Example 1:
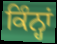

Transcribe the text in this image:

ਕਿੰਨ੍ਹਾਂ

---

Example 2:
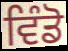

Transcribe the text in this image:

ਵਿੰਡੋ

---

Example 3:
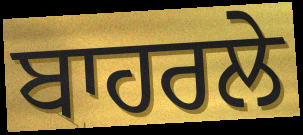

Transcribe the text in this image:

ਬਾਹਰਲੇ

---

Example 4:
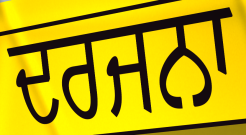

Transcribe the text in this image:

ਦਰਜਨਾ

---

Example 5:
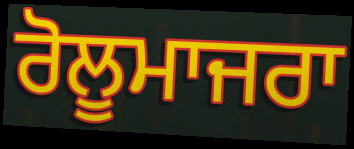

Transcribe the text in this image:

ਰੋਲੂਮਾਜਰਾ